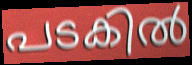
പടകിൽ